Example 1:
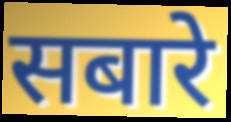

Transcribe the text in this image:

सबारे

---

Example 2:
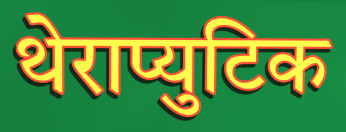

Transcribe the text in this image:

थेराप्युटिक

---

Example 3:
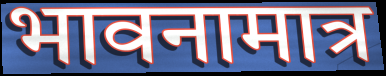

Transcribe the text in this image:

भावनामात्र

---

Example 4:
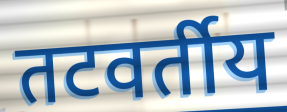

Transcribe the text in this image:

तटवर्तीय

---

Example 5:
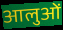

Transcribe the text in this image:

आलुओं